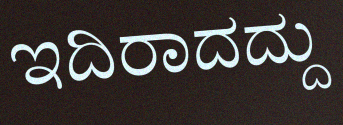
ಇದಿರಾದದ್ದು